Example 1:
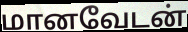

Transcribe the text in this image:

மானவேடன்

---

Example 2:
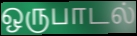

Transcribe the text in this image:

ஒருபாடல்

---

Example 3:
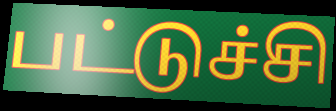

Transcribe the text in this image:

பட்டுச்சி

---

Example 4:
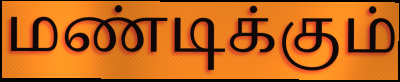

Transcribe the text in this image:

மண்டிக்கும்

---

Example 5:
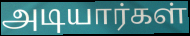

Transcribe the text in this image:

அடியார்கள்